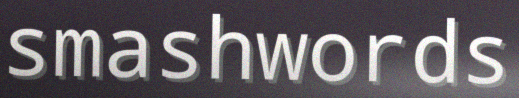
smashwords